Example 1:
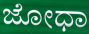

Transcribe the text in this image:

ಜೋಧಾ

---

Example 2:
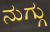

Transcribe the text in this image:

ನುಗ್ಗು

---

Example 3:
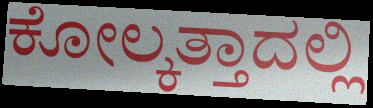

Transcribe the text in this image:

ಕೋಲ್ಕತ್ತಾದಲ್ಲಿ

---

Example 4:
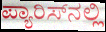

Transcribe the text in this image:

ಪ್ಯಾರಿಸ್‌ನಲ್ಲಿ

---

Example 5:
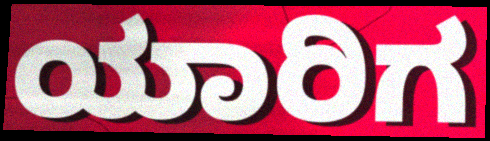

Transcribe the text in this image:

ಯಾರಿಗ